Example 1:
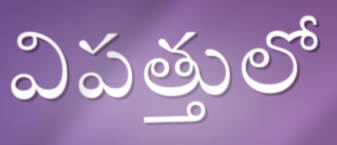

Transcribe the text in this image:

విపత్తులో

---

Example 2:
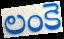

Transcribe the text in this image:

లంకె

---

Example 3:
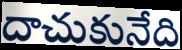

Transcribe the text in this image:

దాచుకునేది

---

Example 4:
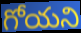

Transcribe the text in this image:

గోయని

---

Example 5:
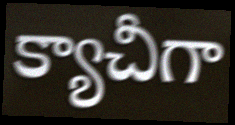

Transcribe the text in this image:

క్యాచీగా